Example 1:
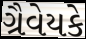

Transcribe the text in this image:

ગ્રૈવેયકે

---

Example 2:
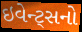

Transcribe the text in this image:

ઇવેન્ટ્સનો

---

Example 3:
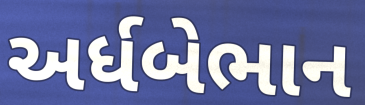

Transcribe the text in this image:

અર્ધબેભાન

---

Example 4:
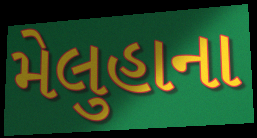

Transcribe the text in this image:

મેલુહાના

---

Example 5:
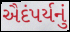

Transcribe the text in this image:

ઐદંપર્યનું